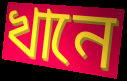
খানে